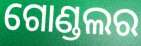
ଗୋଣ୍ଡଲର